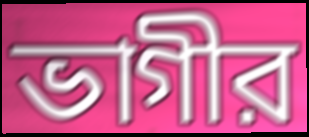
ভাগীর